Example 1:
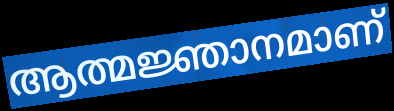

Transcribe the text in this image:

ആത്മജ്ഞാനമാണ്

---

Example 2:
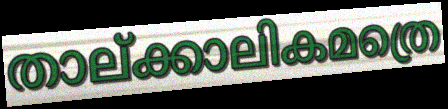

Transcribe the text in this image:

താല്ക്കാലികമത്രെ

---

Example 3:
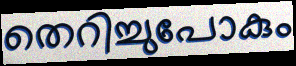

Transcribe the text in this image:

തെറിച്ചുപോകും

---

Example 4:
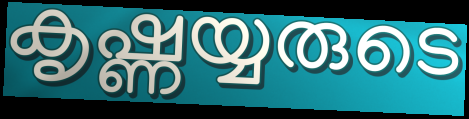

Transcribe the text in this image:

കൃഷ്ണയ്യരുടെ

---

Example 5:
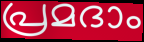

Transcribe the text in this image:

പ്രമദാം